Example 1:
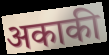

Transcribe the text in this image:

अकाकी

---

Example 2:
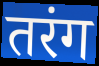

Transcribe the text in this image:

तरंग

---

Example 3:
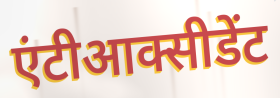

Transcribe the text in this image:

एंटीआक्सीडेंट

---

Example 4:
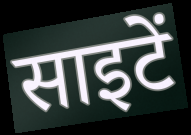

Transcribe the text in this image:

साइटें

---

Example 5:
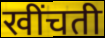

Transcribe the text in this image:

खींचती